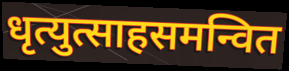
धृत्युत्साहसमन्वित